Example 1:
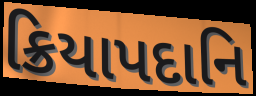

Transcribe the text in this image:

ક્રિયાપદાનિ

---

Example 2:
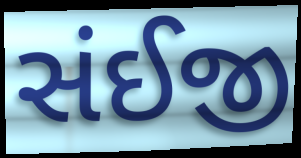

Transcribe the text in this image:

સંઈજી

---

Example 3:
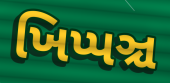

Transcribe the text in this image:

ખિપ્પઞ્ચ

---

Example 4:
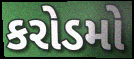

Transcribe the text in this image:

કરોડમો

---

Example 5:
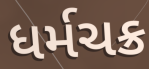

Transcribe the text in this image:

ધર્મચક્ર